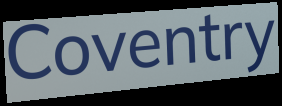
Coventry